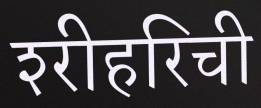
श्रीहरिची